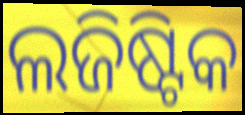
ଲଜିଷ୍ଟିକ